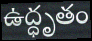
ఉద్ధృతం